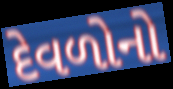
દેવળોનો